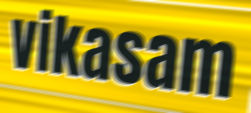
vikasam